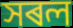
সৰল